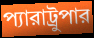
প্যারাট্রুপার